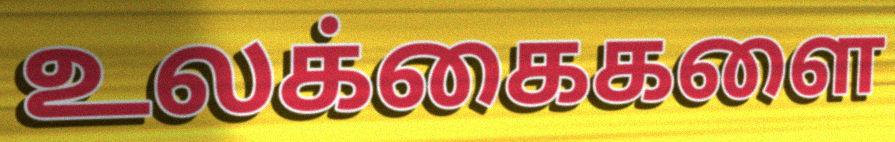
உலக்கைகளை